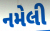
નમેલી